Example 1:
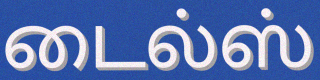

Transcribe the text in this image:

டைல்ஸ்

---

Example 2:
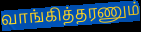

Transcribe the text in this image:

வாங்கித்தரணும்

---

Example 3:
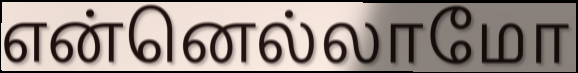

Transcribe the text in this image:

என்னெல்லாமோ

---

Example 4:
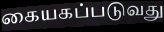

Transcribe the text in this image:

கையகப்படுவது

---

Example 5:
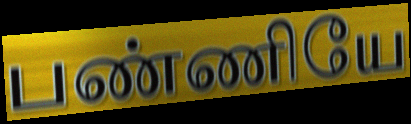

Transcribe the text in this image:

பண்ணியே